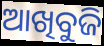
ଆଖିବୁଜି